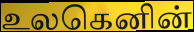
உலகெனின்